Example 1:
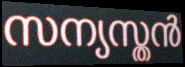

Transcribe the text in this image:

സന്യസ്തൻ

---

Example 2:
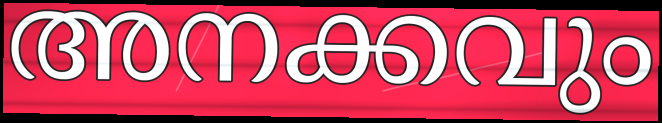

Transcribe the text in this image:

അനക്കവും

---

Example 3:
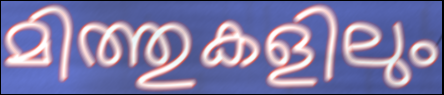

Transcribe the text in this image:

മിത്തുകളിലും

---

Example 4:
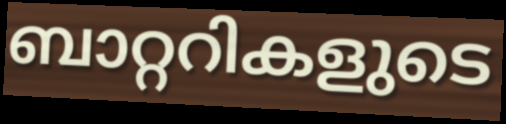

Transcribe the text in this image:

ബാറ്ററികളുടെ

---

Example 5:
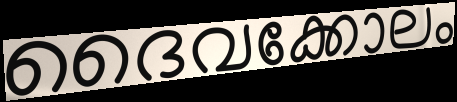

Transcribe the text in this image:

ദൈവക്കോലം